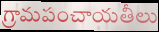
గ్రామపంచాయతీలు